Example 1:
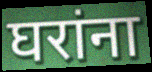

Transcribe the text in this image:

घरांना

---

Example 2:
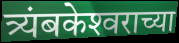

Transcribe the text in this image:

त्र्यंबकेश्‍वराच्या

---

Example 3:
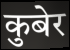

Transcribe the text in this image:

कुबेर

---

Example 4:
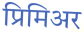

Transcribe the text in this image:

प्रिमिअर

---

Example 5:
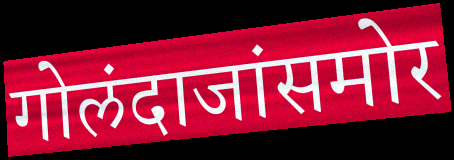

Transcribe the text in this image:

गोलंदाजांसमोर